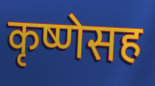
कृष्णेसह